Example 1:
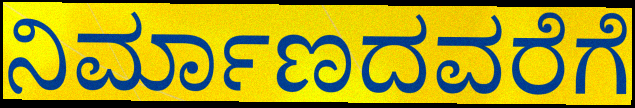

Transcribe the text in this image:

ನಿರ್ಮಾಣದವರೆಗೆ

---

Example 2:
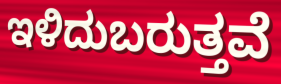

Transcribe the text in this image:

ಇಳಿದುಬರುತ್ತವೆ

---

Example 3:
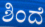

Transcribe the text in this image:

ಶಿಂದೆ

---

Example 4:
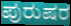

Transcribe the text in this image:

ಪುರುಷರ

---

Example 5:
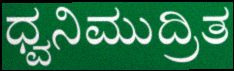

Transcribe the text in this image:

ಧ್ವನಿಮುದ್ರಿತ